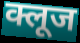
क्लूज